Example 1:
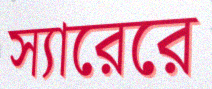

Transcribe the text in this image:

স্যারেরে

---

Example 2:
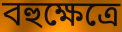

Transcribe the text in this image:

বহুক্ষেত্রে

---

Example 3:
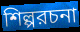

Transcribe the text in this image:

শিল্পরচনা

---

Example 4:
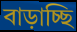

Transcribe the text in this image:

বাড়াচ্ছি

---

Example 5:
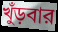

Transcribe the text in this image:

খুঁড়বার